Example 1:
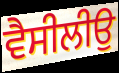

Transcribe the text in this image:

ਵੈਸੀਲੀਉ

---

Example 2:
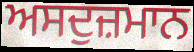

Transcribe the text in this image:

ਅਸਦੁਜ਼ਮਾਨ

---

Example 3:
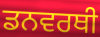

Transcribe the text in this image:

ਡਨਵਰਥੀ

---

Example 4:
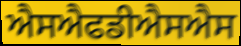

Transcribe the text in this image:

ਐਸਐਫਡੀਐਸਐਸ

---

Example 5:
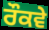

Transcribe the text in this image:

ਰੌਕਵੇ